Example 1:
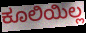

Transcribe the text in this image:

ಕೂಲಿಯಿಲ್ಲ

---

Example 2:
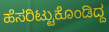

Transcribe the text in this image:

ಹೆಸರಿಟ್ಟುಕೊಂಡಿದ್ದ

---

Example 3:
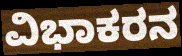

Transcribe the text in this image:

ವಿಭಾಕರನ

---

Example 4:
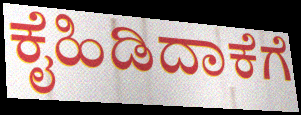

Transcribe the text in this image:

ಕೈಹಿಡಿದಾಕೆಗೆ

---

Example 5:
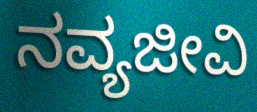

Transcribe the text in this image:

ನವ್ಯಜೀವಿ